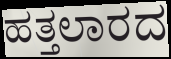
ಹತ್ತಲಾರದ